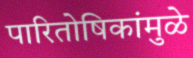
पारितोषिकांमुळे